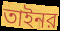
তাইনর